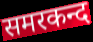
समरकन्द